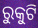
ରୁକୁଟି